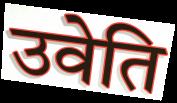
उवेति